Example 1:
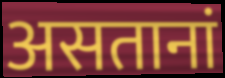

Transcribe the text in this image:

असतानां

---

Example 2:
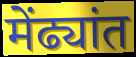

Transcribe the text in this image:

मेंढ्यांत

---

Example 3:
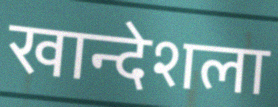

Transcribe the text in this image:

खान्देशला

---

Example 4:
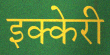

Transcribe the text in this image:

इक्केरी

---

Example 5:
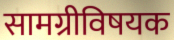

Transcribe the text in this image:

सामग्रीविषयक